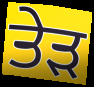
ਤੇੜ